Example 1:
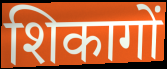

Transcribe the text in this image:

शिकागों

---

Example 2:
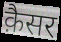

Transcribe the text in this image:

क़ैसर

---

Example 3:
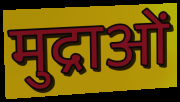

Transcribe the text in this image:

मुद्राओं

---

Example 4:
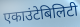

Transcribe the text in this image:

एकाउंटेबिलिटी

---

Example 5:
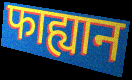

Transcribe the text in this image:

फाह्यान